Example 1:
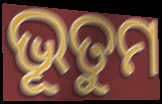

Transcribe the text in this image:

ଭୂତୁମ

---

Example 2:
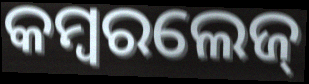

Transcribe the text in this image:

କମ୍ବରଲେଜ୍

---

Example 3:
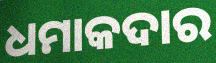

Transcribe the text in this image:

ଧମାକଦାର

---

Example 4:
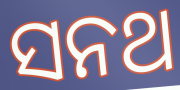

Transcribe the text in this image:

ସନଥ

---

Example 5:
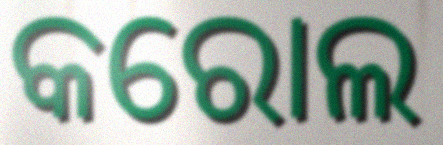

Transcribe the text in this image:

କରୋଲ